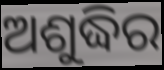
ଅଶୁଦ୍ଧିର